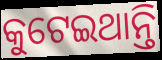
କୁଟେଇଥାନ୍ତି